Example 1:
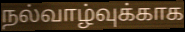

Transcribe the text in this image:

நல்வாழ்வுக்காக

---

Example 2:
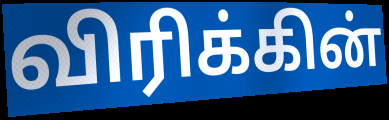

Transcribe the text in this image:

விரிக்கின்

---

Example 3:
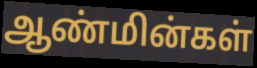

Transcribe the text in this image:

ஆண்மின்கள்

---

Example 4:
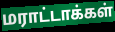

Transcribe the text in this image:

மராட்டாக்கள்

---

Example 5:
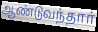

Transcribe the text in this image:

ஆண்டுவந்தார்